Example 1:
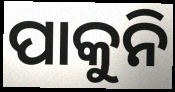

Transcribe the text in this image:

ପାକୁନି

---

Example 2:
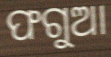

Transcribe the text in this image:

ଫଗୁଆ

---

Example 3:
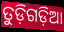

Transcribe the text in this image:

ତୁଡ଼ିଗଡ଼ିଆ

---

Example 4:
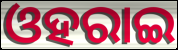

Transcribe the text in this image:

ଓହରାଇ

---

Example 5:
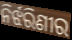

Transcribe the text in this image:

ନିର୍ଝରିଣୀର